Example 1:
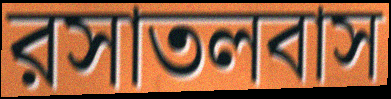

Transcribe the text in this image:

রসাতলবাস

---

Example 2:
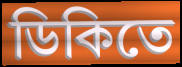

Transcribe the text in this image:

ডিকিতে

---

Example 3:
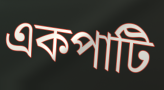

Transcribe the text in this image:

একপাটি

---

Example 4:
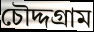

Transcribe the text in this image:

চৌদ্দগ্রাম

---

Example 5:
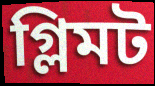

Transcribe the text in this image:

গ্লিমট